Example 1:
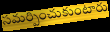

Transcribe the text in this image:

సమర్పించుకుంటారు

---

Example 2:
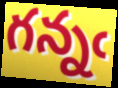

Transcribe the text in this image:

గన్నఁ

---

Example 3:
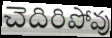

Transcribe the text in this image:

చెదిరిపోవు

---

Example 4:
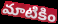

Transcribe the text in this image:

మాటికిం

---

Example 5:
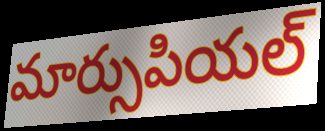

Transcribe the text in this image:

మార్సుపియల్